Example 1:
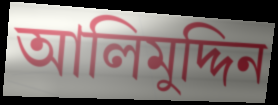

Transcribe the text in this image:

আলিমুদ্দিন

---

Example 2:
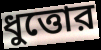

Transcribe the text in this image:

ধুত্তোর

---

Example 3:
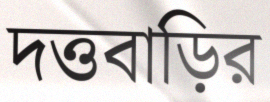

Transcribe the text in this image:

দত্তবাড়ির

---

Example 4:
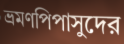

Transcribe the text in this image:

ভ্রমণপিপাসুদের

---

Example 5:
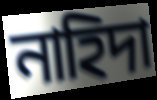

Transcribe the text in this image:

নাহিদা